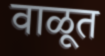
वाळूत